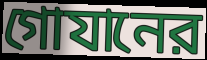
গোযানের